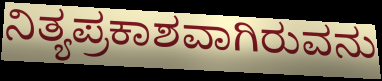
ನಿತ್ಯಪ್ರಕಾಶವಾಗಿರುವನು